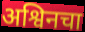
अश्विनचा